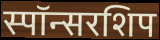
स्पॉन्सरशिप